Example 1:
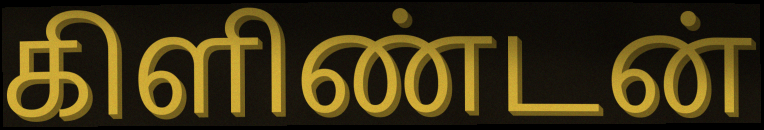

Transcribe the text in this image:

கிளிண்டன்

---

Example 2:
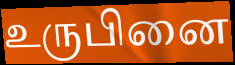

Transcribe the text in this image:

உருபினை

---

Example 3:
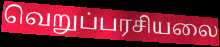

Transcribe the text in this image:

வெறுப்பரசியலை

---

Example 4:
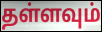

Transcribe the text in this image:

தள்ளவும்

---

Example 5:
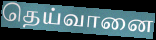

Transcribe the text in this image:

தெய்வானை